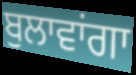
ਬੁਲਾਵਾਂਗਾ